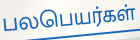
பலபெயர்கள்